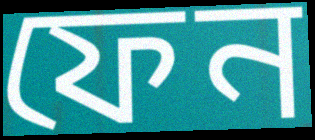
ফেন